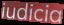
iudicia